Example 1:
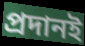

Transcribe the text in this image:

প্রদানই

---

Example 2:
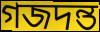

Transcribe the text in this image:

গজদন্ত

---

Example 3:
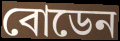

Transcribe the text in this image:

বোডেন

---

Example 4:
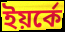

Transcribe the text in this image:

ইয়র্কে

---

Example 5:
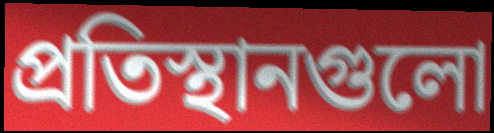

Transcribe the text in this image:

প্রতিস্থানগুলো